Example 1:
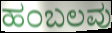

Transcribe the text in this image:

ಹಂಬಲವು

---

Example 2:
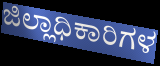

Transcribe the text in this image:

ಜಿಲ್ಲಾಧಿಕಾರಿಗಳ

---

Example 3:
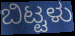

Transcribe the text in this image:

ಬಿಟ್ಟಳು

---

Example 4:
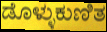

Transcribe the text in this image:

ಡೊಳ್ಳುಕುಣಿತ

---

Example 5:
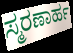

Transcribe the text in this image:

ಸ್ಮರಣಾರ್ಹ